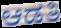
ಆಡತಿ